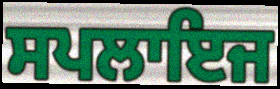
ਸਪਲਾਇਜ